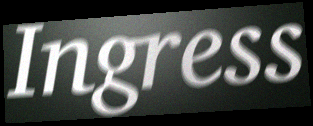
Ingress